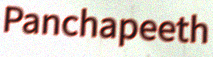
Panchapeeth